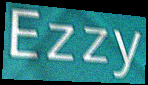
Ezzy